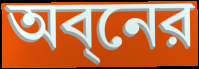
অব্নের